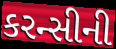
કરન્સીની